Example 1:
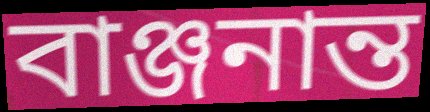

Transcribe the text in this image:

বাঞ্জনান্ত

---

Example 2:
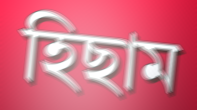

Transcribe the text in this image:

হিছাম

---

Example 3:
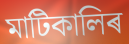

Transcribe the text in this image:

মাটিকালিৰ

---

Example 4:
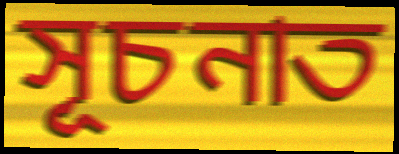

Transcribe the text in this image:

সূচনাত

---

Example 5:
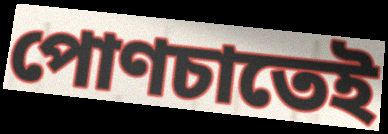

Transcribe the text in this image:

পোণচাতেই